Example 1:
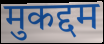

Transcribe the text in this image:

मुकद्दम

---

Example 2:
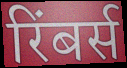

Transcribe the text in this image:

रिंबर्स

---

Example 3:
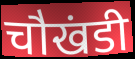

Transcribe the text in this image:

चौखंडी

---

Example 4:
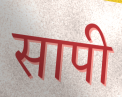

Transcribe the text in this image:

सापी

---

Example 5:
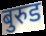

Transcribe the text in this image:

बुरुड